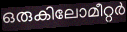
ഒരുകിലോമീറ്റർ